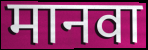
मानवा